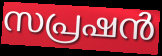
സപ്രഷൻ